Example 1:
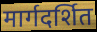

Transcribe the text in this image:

मार्गदर्शित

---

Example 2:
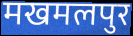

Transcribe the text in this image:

मखमलपुर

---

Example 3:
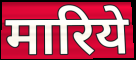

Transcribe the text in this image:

मारिये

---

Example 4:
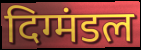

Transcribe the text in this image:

दिग्मंडल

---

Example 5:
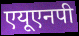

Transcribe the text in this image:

एयूएनपी